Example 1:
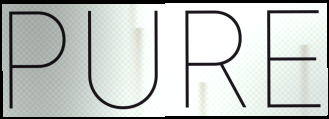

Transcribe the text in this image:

PURE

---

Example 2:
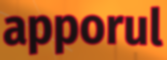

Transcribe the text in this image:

apporul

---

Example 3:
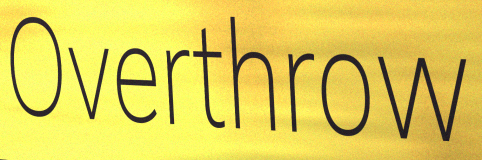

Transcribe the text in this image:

Overthrow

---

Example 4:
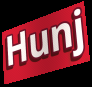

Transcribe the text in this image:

Hunj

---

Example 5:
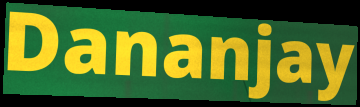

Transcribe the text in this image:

Dananjay